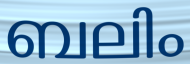
ബലിം